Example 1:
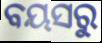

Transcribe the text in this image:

ବୟସରୁ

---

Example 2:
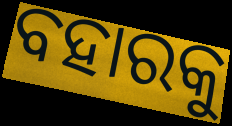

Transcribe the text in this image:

ବହାରକୁ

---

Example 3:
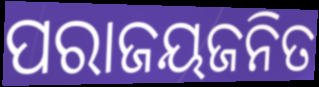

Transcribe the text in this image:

ପରାଜୟଜନିତ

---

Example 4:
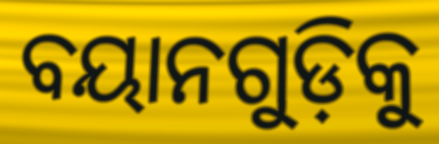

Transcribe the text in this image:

ବୟାନଗୁଡ଼ିକୁ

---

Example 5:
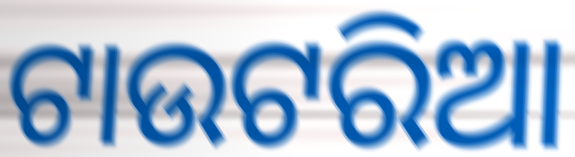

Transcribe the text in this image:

ଟାଉଟରିଆ